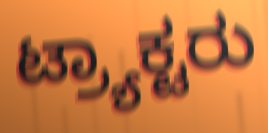
ಟ್ರ್ಯಾಕ್ಟರು